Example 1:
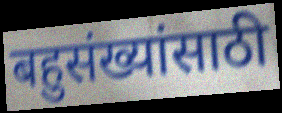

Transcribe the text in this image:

बहुसंख्यांसाठी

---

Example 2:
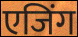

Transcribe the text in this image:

एजिंग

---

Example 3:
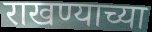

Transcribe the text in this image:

राखण्याच्या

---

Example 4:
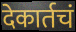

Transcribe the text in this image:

देकार्तचं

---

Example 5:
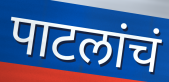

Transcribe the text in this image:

पाटलांचं